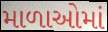
માળાઓમાં